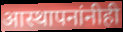
आस्थापनांनीही